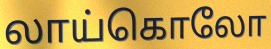
லாய்கொலோ